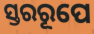
ସ୍ତରରୂପେ